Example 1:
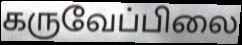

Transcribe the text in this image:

கருவேப்பிலை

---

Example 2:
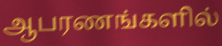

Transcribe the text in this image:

ஆபரணங்களில்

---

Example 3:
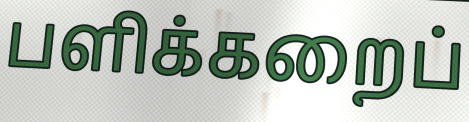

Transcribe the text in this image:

பளிக்கறைப்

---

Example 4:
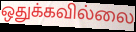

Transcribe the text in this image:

ஒதுக்கவில்லை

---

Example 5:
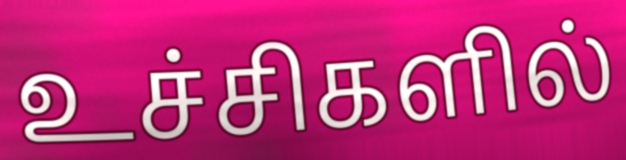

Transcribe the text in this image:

உச்சிகளில்